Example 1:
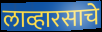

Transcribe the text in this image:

लाव्हारसाचे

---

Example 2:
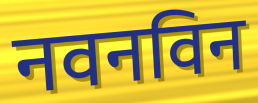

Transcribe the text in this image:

नवनविन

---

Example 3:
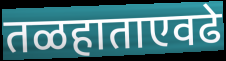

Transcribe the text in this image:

तळहाताएवढे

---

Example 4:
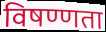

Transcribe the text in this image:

विषण्णता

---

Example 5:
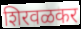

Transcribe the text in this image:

शिरवळकर